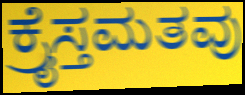
ಕ್ರೈಸ್ತಮತವು